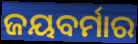
ଜୟବର୍ମାର